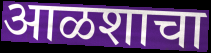
आळशाचा